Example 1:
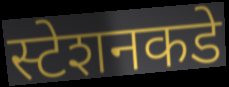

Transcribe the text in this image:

स्टेशनकडे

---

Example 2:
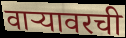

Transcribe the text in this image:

वार्‍यावरची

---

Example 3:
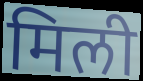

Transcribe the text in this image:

मिली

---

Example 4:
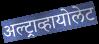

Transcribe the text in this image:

अल्ट्राव्हायोलेट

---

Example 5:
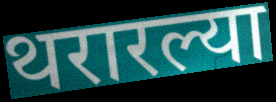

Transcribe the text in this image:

थरारल्या